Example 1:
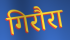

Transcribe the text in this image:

गिरौरा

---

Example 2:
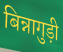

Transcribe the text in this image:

बिन्नागुड़ी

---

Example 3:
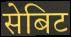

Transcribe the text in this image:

सेबिट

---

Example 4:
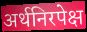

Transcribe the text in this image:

अर्थनिरपेक्ष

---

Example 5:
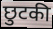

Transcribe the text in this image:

छुटकी